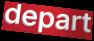
depart